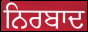
ਨਿਰਬਾਦ